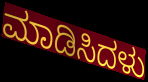
ಮಾಡಿಸಿದಳು